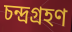
চন্দ্রগ্রহণ